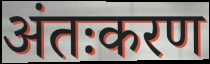
अंतःकरण